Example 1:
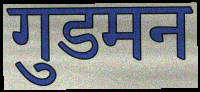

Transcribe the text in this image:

गुडमन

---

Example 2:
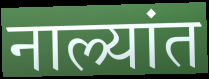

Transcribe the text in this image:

नाल्यांत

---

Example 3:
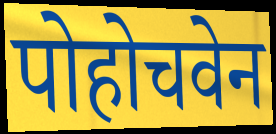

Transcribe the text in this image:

पोहोचवेन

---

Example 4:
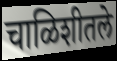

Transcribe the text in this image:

चाळिशीतले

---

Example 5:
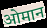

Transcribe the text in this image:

ओमान